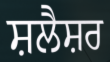
ਸ਼ਲੈਸ਼ਰ